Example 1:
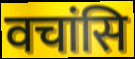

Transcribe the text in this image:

वचांसि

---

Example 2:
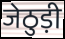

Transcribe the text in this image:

जेठुड़ी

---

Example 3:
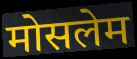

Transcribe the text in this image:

मोसलेम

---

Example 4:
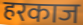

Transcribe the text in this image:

हरकाज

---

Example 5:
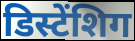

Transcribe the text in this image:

डिस्टेंशिग